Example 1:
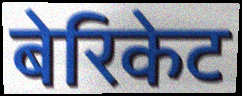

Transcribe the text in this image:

बेरिकेट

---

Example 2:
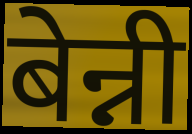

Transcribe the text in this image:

बेन्नी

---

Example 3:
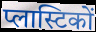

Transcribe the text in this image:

प्लास्टिकों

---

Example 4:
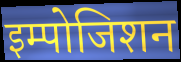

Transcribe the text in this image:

इम्पोजिशन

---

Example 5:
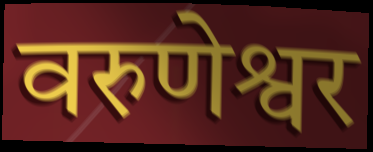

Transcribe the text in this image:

वरुणेश्वर